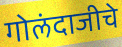
गोलंदाजीचे